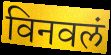
विनवलं